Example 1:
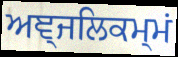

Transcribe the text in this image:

ਅਞ੍ਜਲਿਕਮ੍ਮਂ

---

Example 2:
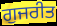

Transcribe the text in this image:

ਗੁਜਰੀਤ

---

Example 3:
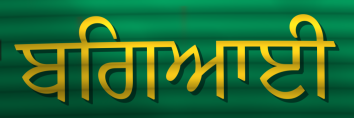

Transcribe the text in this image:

ਬਗਿਆਈ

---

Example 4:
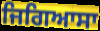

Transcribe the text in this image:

ਜਿਗਿਆਸਾ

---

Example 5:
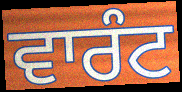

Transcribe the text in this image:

ਵਾਰੰਟ